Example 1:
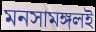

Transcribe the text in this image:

মনসামঙ্গলই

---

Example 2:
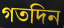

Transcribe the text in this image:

গতদিন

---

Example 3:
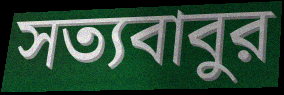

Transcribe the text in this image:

সত্যবাবুর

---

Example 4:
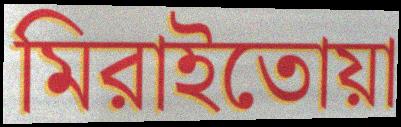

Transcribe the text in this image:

মিরাইতোয়া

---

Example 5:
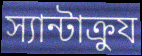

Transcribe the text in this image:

স্যান্টাক্রুয